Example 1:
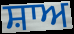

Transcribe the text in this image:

ਸ਼ਾਅ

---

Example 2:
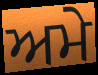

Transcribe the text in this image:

ਅਮੇ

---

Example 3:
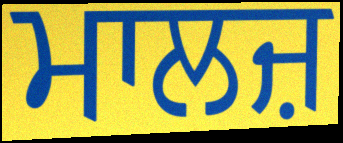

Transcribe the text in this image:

ਮਾਲਜ਼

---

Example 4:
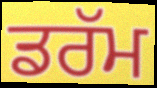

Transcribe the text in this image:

ਡਰੱਮ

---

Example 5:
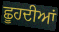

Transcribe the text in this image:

ਛੂਹਦੀਆਂ